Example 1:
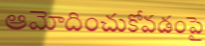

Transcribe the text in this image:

ఆమోదించుకోవడంపై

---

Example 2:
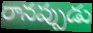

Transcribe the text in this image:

రానప్పుడు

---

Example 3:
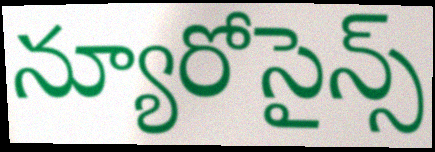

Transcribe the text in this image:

న్యూరోసైన్స్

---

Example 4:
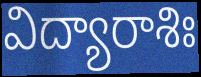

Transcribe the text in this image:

విద్యారాశిః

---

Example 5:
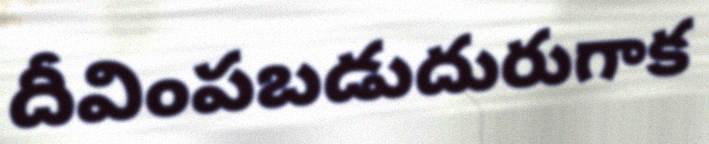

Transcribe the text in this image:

దీవింపబడుదురుగాక